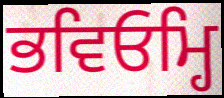
ਭਵਿਓਮ੍ਹਿ